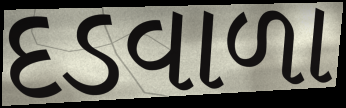
દડવાળા